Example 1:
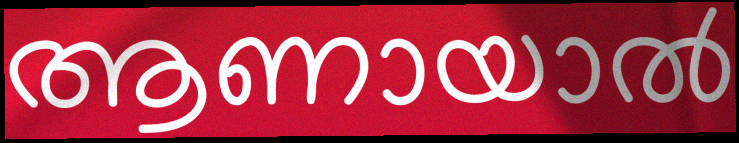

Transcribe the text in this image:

ആണായാൽ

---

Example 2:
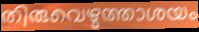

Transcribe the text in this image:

തിരുവെഴുത്താശയം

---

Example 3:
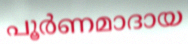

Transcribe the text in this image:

പൂർണമാദായ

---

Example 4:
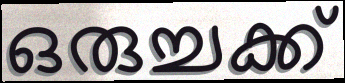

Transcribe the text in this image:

ഒരുച്ചക്ക്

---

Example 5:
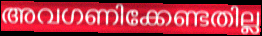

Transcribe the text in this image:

അവഗണിക്കേണ്ടതില്ല